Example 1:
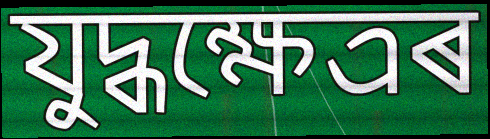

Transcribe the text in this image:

যুদ্ধক্ষেত্ৰৰ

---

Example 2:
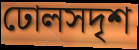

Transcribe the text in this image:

ঢোলসদৃশ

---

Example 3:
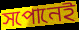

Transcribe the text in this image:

সপোনেই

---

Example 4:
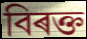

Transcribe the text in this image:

বিৰক্ত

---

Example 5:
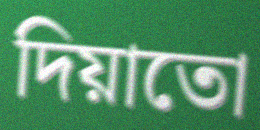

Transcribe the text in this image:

দিয়াতো